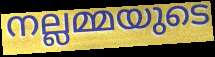
നല്ലമ്മയുടെ